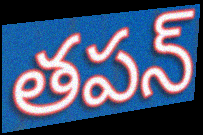
తపన్